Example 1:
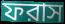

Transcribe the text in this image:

ফরাস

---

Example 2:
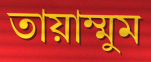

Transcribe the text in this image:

তায়াম্মুম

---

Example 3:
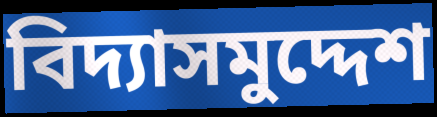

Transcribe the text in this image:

বিদ্যাসমুদ্দেশ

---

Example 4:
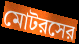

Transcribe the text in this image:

মোটরসের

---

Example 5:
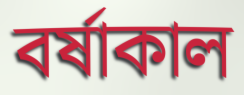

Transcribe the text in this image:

বর্ষাকাল